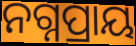
ନଗ୍ନପ୍ରାୟ